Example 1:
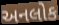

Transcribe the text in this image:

અનલોક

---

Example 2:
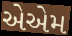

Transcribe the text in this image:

એએમ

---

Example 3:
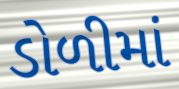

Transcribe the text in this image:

ડોળીમાં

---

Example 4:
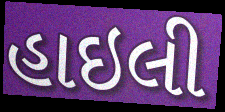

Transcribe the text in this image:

હાઇલી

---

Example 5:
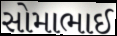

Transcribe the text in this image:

સોમાભાઈ